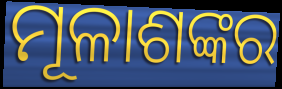
ମୂଳାଶଙ୍କର